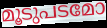
മൂടുപടമോ